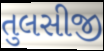
તુલસીજી